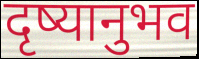
दृष्यानुभव